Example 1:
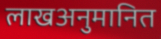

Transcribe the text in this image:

लाखअनुमानित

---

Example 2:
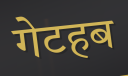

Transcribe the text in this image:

गेटहब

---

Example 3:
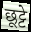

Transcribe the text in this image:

छूट्टे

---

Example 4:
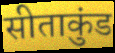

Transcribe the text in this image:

सीताकुंड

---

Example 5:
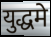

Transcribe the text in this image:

युद्धमे